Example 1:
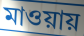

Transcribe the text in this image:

মাওয়ায়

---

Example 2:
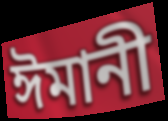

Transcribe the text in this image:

ঈমানী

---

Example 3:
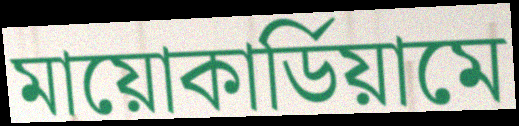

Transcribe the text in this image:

মায়োকার্ডিয়ামে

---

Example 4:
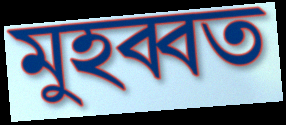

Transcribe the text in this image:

মুহব্বত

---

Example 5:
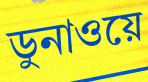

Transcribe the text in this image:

ডুনাওয়ে